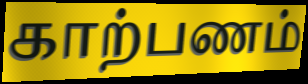
காற்பணம்